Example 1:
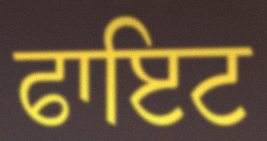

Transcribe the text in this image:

ਫਾਇਟ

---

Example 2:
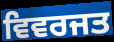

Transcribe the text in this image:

ਵਿਵਰਜਤ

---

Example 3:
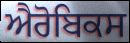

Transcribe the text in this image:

ਐਰੋਬਿਕਸ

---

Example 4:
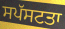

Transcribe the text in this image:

ਸਪੱਸਟਤਾ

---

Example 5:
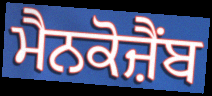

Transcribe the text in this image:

ਮੈਨਕੋਜ਼ੈਂਬ